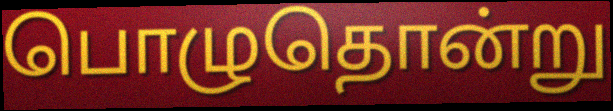
பொழுதொன்று